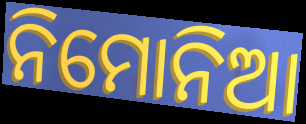
ନିମୋନିଆ